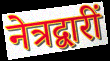
नेत्रद्वारीं